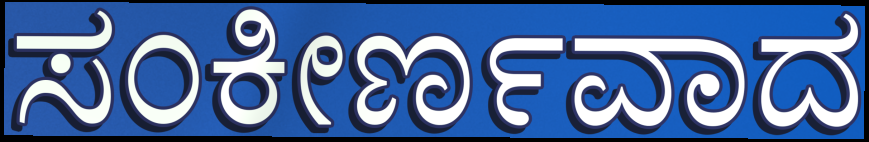
ಸಂಕೀರ್ಣವಾದ